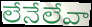
లేనేలేవా